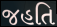
જહતિ